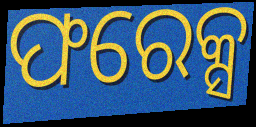
ଫରେକ୍ସ